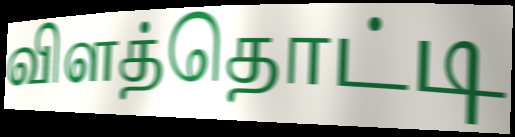
விளத்தொட்டி